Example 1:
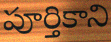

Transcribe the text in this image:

పూర్తికాని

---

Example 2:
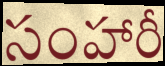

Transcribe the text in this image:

సంహారీ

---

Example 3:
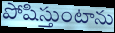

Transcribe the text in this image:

పోషిస్తుంటాను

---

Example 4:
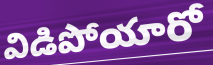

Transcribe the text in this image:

విడిపోయారో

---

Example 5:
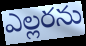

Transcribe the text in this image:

ఎల్లరను